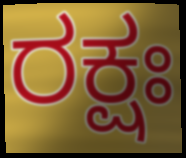
ರಕ್ಷಃ